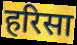
हरिसा